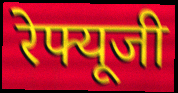
रेफ्यूजी